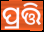
ପ୍ରତ୍ତି